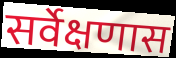
सर्वेक्षणास